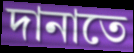
দানাতে